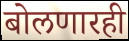
बोलणारही